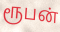
ரூபன்